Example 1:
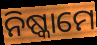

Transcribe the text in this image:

ନିଷ୍କାମେ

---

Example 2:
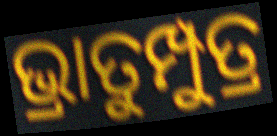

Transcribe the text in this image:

ଭ୍ରାତୁମ୍ପୁତ୍ର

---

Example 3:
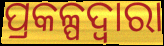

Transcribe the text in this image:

ପ୍ରକଳ୍ପଦ୍ୱାରା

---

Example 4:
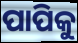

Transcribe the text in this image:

ପାପିକୁ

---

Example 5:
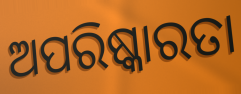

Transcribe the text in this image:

ଅପରିଷ୍କାରତା